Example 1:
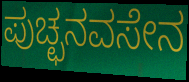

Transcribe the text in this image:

ಪುಚ್ಛನವಸೇನ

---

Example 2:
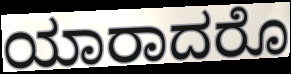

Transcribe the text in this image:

ಯಾರಾದರೊ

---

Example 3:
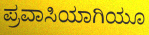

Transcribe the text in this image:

ಪ್ರವಾಸಿಯಾಗಿಯೂ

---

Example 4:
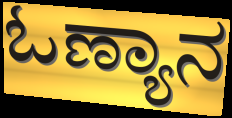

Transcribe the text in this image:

ಓಣ್ಯಾನ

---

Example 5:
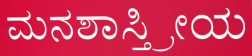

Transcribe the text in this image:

ಮನಶಾಸ್ತ್ರೀಯ